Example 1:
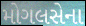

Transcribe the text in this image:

મોગલસેના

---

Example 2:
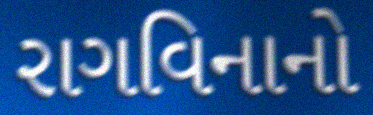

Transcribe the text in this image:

રાગવિનાનો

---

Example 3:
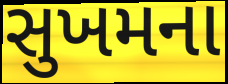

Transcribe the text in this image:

સુખમના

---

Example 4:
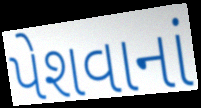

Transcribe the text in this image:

પેશવાનાં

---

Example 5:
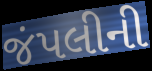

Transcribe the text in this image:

જંપલીની